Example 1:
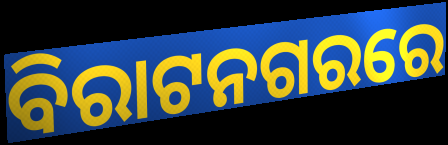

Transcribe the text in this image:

ବିରାଟନଗରରେ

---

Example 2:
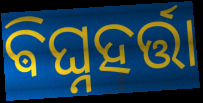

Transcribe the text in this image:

ଵିଘ୍ନହର୍ତ୍ତା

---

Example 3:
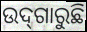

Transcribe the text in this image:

ଉଦ୍‌ଗାରୁଛି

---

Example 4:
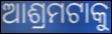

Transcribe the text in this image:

ଆଶ୍ରମଟାକୁ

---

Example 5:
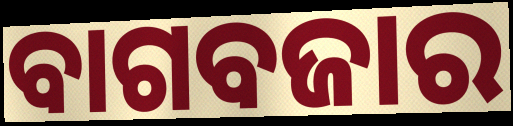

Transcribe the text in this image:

ବାଗବଜାର